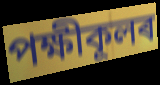
পক্ষীকূলৰ